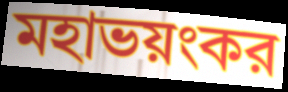
মহাভয়ংকর